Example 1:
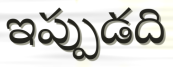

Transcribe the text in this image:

ఇప్పుడది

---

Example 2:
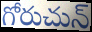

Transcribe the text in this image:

గోరుచున్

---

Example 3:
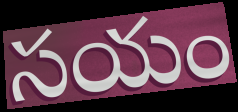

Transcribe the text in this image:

సయం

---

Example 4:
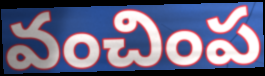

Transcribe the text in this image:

వంచింప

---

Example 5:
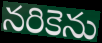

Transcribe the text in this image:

నరికెను